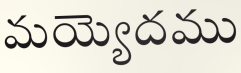
మయ్యెదము